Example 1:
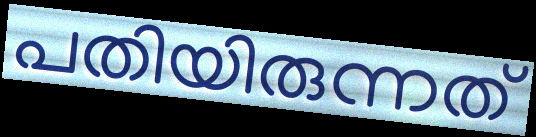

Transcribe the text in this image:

പതിയിരുന്നത്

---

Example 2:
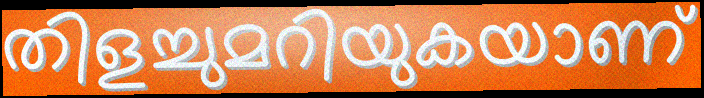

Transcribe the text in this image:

തിളച്ചുമറിയുകയാണ്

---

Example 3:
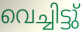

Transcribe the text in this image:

വെച്ചിട്ടു്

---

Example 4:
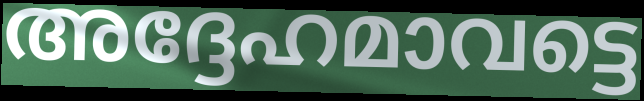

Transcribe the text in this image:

അദ്ദേഹമാവട്ടെ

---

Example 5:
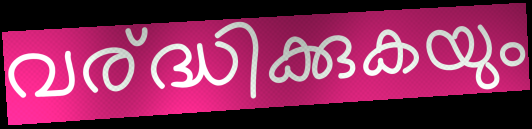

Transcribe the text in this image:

വര്ദ്ധിക്കുകയും